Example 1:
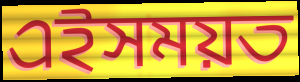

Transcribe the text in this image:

এইসময়ত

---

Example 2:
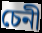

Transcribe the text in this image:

চেনী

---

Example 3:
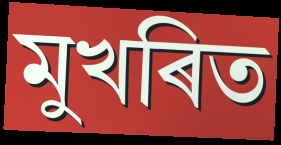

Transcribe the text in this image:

মুখৰিত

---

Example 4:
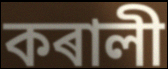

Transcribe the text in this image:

কৰালী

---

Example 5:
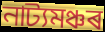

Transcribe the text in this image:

নাট্যমঞ্চৰ